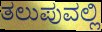
ತಲುಪುವಲ್ಲಿ